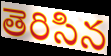
తెరిసిన